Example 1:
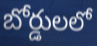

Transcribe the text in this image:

బోర్డులలో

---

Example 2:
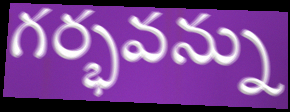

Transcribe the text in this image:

గర్భవన్ను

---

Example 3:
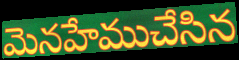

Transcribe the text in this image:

మెనహేముచేసిన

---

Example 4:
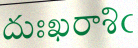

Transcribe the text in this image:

దుఃఖరాశిఁ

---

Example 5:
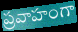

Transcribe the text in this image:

ప్రవాహంగా